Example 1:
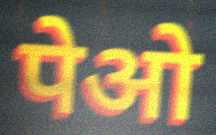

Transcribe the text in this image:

पेओ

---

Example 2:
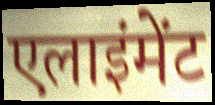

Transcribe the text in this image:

एलाइंमेंट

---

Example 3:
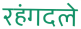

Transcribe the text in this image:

रहंगदले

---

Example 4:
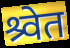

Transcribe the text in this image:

श्र्वेत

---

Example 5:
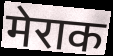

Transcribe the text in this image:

मेराक